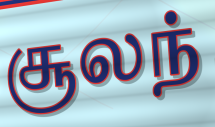
சூலந்